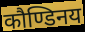
कौण्डिनय